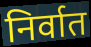
निर्वात